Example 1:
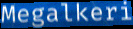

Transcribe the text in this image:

Megalkeri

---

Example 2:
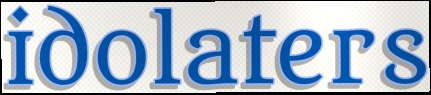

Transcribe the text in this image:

idolaters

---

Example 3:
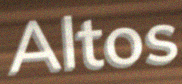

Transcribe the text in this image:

Altos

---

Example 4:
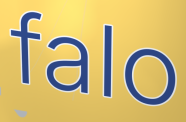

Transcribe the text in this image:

falo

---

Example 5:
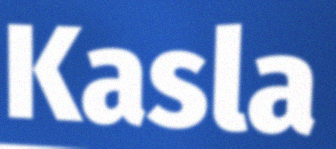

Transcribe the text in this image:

Kasla